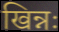
खिन्नः